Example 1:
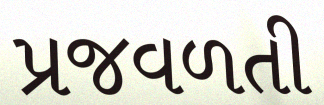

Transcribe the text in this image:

પ્રજવળતી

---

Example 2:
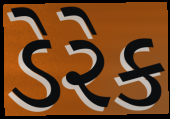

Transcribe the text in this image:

ડેરેક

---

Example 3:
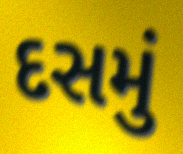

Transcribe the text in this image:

દસમું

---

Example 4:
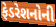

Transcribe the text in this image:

ફેડરેશનોની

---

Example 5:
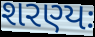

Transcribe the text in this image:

શરણ્યઃ